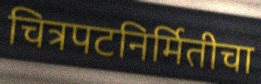
चित्रपटनिर्मितीचा